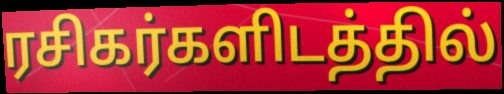
ரசிகர்களிடத்தில்